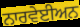
ਨਾਰਵੇਈਅਨ